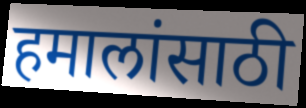
हमालांसाठी